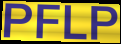
PFLP